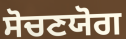
ਸੋਚਣਯੋਗ